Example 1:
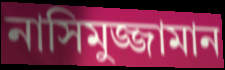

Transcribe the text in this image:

নাসিমুজ্জামান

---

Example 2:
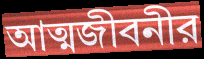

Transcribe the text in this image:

আত্মজীবনীর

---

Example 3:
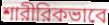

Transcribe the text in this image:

শারীরিকভাবে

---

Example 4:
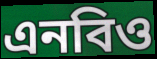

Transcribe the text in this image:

এনবিও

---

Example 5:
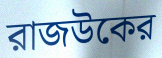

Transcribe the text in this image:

রাজউকের